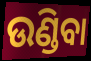
ଉଣ୍ଡିବା